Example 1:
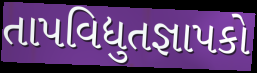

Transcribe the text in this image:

તાપવિદ્યુતજ્ઞાપકો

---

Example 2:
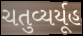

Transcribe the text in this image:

ચતુવ્યર્યૂહ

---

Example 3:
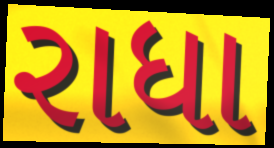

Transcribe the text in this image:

રાધા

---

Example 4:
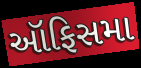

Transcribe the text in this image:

ઑફિસમા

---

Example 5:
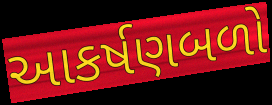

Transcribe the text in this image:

આકર્ષણબળો